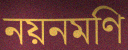
নয়নমণি